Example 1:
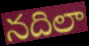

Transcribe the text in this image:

నదిలా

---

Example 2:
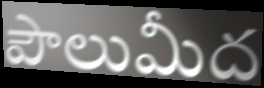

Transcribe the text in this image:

పౌలుమీద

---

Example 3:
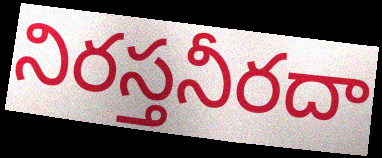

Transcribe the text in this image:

నిరస్తనీరదా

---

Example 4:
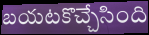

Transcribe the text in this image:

బయటకొచ్చేసింది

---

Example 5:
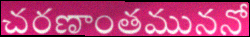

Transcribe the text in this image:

చరణాంతముననో